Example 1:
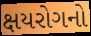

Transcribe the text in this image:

ક્ષયરોગનો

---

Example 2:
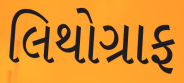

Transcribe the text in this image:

લિથોગ્રાફ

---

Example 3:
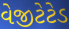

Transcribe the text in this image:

વેજીટેટેડ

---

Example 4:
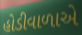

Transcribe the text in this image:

હોડીવાળાએ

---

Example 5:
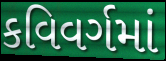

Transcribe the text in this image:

કવિવર્ગમાં